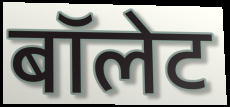
बॉलेट